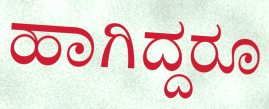
ಹಾಗಿದ್ದರೂ